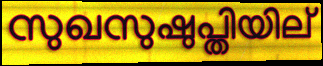
സുഖസുഷുപ്തിയില്